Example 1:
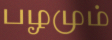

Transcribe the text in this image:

பழமும்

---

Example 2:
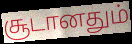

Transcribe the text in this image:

சூடானதும்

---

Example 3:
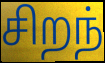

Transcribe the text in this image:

சிறந்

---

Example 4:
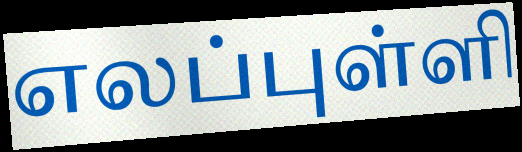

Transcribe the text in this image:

எலப்புள்ளி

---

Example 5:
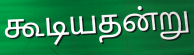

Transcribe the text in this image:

கூடியதன்று